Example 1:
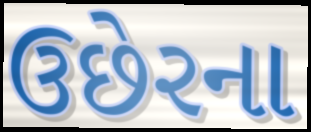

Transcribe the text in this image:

ઉછેરના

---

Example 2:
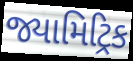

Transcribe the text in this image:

જ્યામિટ્રિક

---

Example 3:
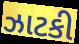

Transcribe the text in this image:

ઝાટકી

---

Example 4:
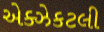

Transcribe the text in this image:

એક્ઝેકટલી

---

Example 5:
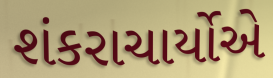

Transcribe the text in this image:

શંકરાચાર્યોએ